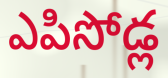
ఎపిసోడ్ల